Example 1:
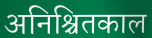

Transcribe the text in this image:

अनिश्चितकाल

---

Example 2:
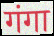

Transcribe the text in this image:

गंगा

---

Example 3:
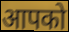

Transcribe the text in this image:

आपको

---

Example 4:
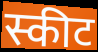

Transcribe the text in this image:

स्कीट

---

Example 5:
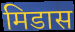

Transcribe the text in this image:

मिडास